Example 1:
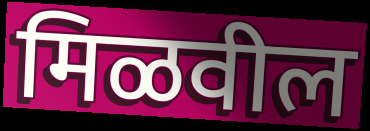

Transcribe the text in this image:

मिळवील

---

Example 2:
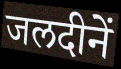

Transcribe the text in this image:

जलदीनें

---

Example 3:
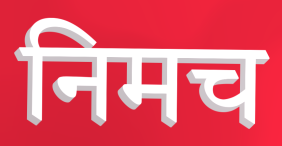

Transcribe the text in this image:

निमच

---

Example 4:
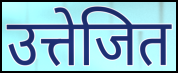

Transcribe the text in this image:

उत्तेजित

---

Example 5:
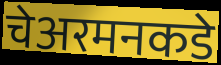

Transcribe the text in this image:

चेअरमनकडे